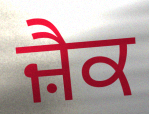
ਜ਼ੈਕ